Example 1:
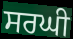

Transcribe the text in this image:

ਸਰਘੀ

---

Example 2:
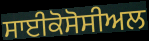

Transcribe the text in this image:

ਸਾਈਕੋਸੋਸੀਅਲ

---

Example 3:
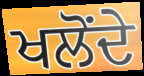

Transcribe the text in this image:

ਖਲੋਂਦੇ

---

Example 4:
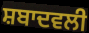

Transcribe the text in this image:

ਸ਼ਬਾਦਵਲੀ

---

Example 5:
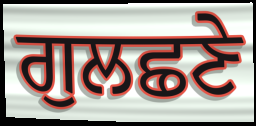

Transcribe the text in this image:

ਗੁਲਛਣੇ